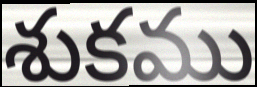
శుకము